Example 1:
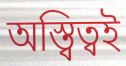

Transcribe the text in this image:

অস্ত্বিত্বই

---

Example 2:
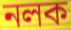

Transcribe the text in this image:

নলক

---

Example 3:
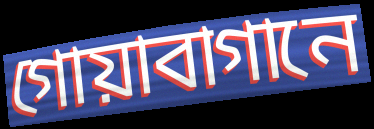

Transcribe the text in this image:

গোয়াবাগানে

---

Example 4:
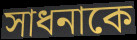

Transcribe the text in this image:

সাধনাকে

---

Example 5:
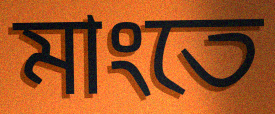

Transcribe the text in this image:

মাংতে